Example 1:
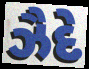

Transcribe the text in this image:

ઝૈદે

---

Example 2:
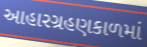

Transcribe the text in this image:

આહારગ્રહણકાળમાં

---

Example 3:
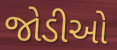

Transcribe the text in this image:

જોડીઓ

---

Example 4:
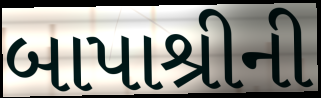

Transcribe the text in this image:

બાપાશ્રીની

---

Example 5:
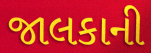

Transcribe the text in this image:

જાલકાની